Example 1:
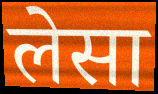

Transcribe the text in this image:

लेसा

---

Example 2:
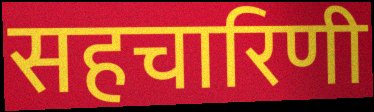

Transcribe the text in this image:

सहचारिणी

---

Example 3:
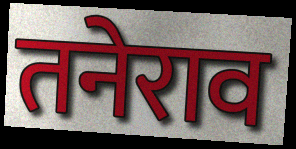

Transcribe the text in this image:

तनेराव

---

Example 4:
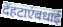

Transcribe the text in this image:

देंहटाएंबधाई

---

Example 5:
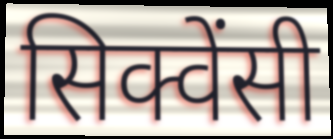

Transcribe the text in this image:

सिक्वेंसी